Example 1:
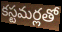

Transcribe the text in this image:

కస్టమర్లతో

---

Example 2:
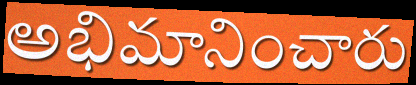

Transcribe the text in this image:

అభిమానించారు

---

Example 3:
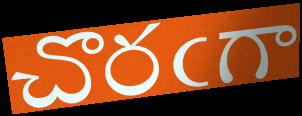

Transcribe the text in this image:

చొరఁగా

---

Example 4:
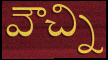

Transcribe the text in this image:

వౌచ్ని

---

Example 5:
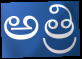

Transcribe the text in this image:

అత్రి